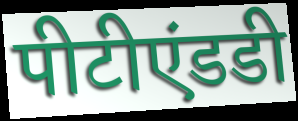
पीटीएंडडी